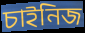
চাইনিজ